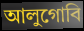
আলুগোবি